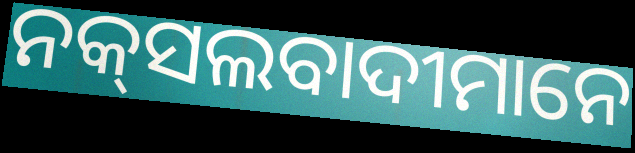
ନକ୍‌ସଲବାଦୀମାନେ